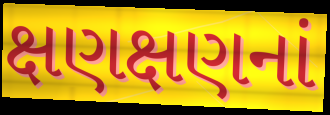
ક્ષણક્ષણનાં